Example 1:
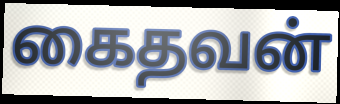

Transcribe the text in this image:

கைதவன்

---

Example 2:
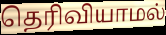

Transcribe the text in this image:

தெரிவியாமல்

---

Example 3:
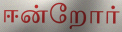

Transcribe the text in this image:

ஈன்றோர்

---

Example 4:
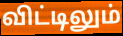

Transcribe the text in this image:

விட்டிலும்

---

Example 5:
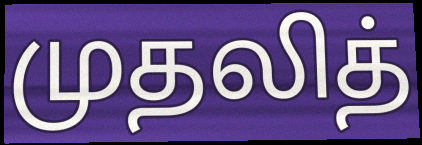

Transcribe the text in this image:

முதலித்